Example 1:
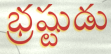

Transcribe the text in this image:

భ్రష్టుడు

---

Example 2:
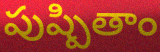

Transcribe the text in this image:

పుష్పితాం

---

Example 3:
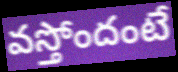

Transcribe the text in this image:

వస్తోందంటే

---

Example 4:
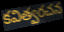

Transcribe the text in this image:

కవిత్వరచన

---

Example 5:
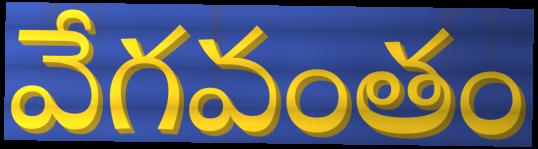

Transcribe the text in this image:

వేగవంతం